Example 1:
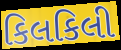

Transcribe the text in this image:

કિલકિલી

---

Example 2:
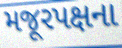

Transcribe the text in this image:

મજૂરપક્ષના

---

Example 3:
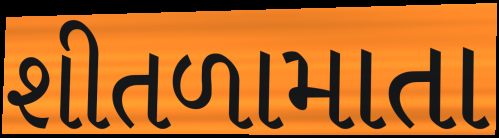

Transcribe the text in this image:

શીતળામાતા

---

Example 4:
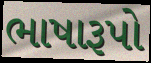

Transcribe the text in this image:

ભાષારૂપો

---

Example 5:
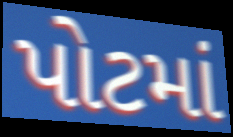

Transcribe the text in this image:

પોટમાં